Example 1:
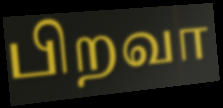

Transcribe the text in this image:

பிறவா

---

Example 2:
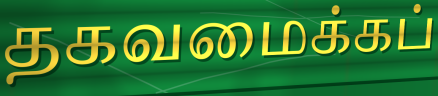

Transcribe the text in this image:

தகவமைக்கப்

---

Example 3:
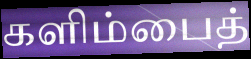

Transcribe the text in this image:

களிம்பைத்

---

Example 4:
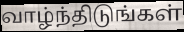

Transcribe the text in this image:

வாழ்ந்திடுங்கள்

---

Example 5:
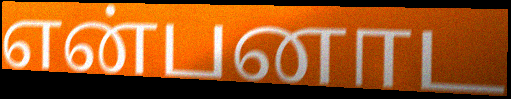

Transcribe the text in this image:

என்பனாட